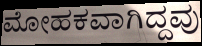
ಮೋಹಕವಾಗಿದ್ದವು